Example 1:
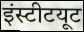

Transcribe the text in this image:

इंस्‍टीटयूट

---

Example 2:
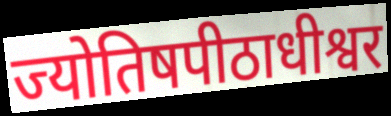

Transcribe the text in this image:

ज्योतिषपीठाधीश्वर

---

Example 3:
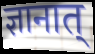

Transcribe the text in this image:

ज्ञानात्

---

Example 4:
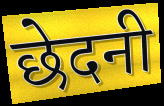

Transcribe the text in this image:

छेदनी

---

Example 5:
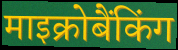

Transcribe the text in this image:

माइक्रोबैंकिंग